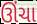
ઊંચા